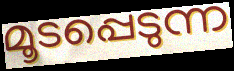
മൂടപ്പെടുന്ന